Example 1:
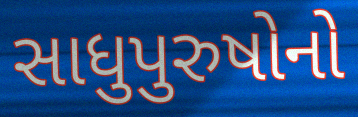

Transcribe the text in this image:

સાધુપુરુષોનો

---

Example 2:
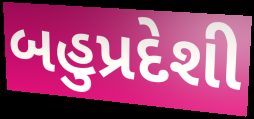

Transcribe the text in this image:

બહુપ્રદેશી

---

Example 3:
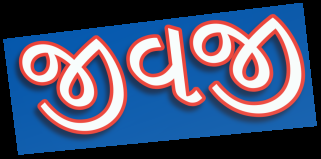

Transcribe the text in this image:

જીવજી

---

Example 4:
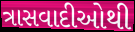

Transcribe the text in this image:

ત્રાસવાદીઓથી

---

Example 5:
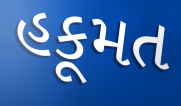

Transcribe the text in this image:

હકૂમત